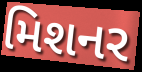
મિશનર